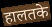
हालतके